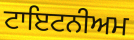
ਟਾਇਟਨੀਅਮ